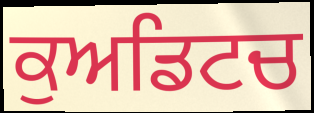
ਕੁਅਡਿਟਚ